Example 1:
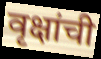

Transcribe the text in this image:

वृक्षांची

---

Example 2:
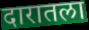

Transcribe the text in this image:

दारातला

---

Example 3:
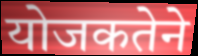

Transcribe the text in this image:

योजकतेने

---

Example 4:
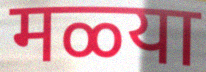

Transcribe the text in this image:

मळ्या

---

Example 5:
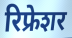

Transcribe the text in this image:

रिफ्रेशर